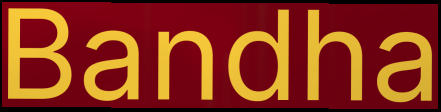
Bandha